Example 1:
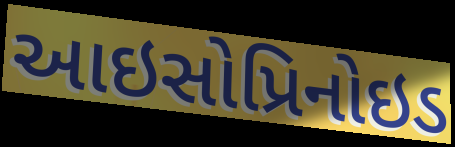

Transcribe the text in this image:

આઇસોપ્રિનોઇડ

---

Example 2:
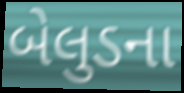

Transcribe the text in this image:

બેલુડના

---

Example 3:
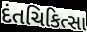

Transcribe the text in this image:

દંતચિકિત્સા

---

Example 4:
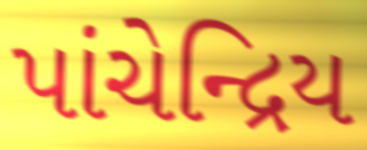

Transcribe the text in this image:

પાંચેન્દ્રિય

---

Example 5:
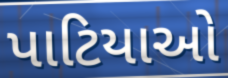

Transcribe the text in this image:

પાટિયાઓ